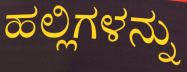
ಹಲ್ಲಿಗಳನ್ನು